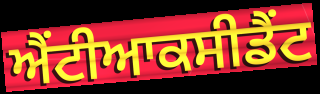
ਐਂਟੀਆਕਸੀਡੈਂਟ